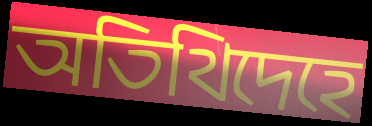
অতিথিদেহে